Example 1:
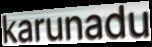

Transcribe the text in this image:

karunadu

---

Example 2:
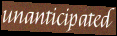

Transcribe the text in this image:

unanticipated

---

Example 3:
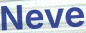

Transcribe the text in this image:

Neve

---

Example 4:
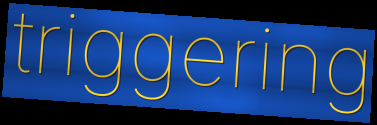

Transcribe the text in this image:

triggering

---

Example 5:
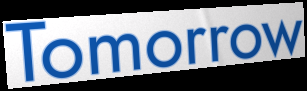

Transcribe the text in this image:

Tomorrow